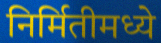
निर्मितीमध्ये